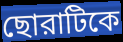
ছোরাটিকে